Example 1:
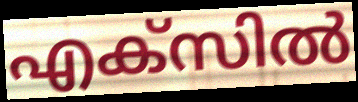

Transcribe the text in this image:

എക്സിൽ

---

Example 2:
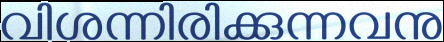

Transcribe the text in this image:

വിശന്നിരിക്കുന്നവനു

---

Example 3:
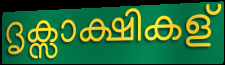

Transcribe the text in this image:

ദൃക്സാക്ഷികള്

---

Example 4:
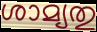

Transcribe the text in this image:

ശാമ്യതു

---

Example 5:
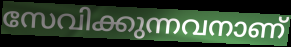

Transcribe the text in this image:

സേവിക്കുന്നവനാണ്